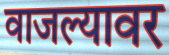
वाजल्यावर